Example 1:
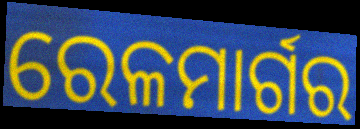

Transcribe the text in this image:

ରେଳମାର୍ଗର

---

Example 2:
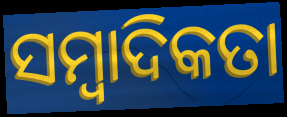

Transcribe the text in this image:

ସମ୍ବାଦିକତା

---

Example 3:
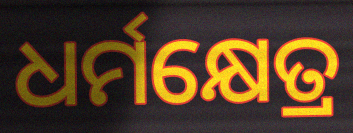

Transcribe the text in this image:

ଧର୍ମକ୍ଷେତ୍ର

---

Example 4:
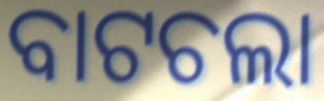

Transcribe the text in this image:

ବାଟଚଲା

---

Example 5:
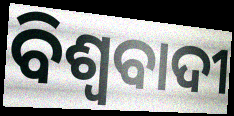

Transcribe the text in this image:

ବିଶ୍ଵବାଦୀ